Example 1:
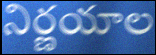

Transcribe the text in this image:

నిర్ణయాల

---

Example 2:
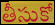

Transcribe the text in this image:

తీసుకో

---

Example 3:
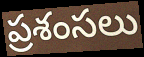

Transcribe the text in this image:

ప్రశంసలు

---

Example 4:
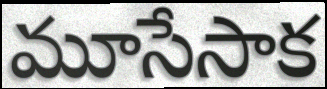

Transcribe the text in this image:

మూసేసాక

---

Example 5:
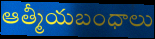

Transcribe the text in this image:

ఆత్మీయబంధాలు